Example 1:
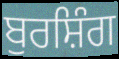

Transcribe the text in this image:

ਬੁਰਸ਼ਿੰਗ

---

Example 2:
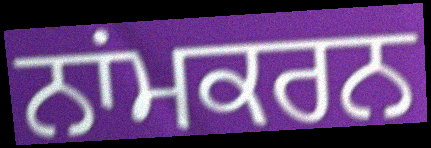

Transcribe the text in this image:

ਨਾਂਮਕਰਨ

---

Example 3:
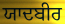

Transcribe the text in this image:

ਯਾਦਬੀਰ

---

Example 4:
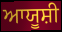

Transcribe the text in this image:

ਆਯੂਸ਼ੀ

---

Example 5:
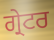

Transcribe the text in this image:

ਗ੍ਰੇਟਰ